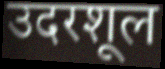
उदरशूल